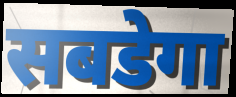
सबडेगा